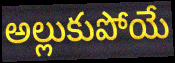
అల్లుకుపోయే